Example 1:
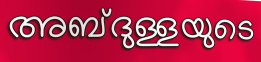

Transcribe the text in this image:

അബ്ദുള്ളയുടെ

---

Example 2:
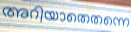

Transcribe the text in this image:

അറിയാതെതന്നെ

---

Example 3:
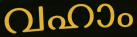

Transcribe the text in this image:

വഹാം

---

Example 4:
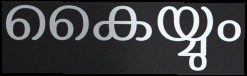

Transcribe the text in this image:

കൈയ്യും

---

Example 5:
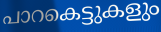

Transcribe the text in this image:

പാറകെട്ടുകളും